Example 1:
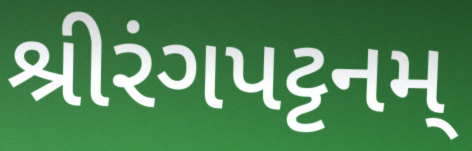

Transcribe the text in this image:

શ્રીરંગપટ્ટનમ્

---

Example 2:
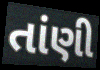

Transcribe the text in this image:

તાંણી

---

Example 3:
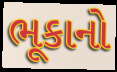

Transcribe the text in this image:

ભૂકાનો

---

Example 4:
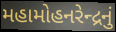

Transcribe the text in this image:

મહામોહનરેન્દ્રનું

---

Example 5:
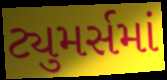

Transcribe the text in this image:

ટ્યુમર્સમાં